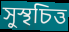
সুস্থচিত্ত